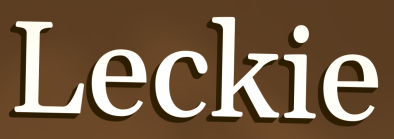
Leckie